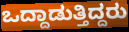
ಒದ್ದಾಡುತ್ತಿದ್ದರು